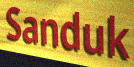
Sanduk